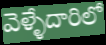
వెళ్ళేదారిలో